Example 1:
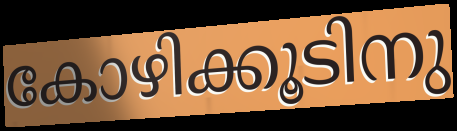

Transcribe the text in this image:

കോഴിക്കൂടിനു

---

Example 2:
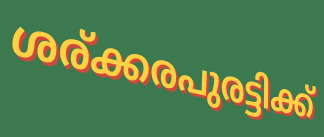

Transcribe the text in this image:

ശര്ക്കരപുരട്ടിക്ക്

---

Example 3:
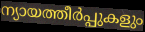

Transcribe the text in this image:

ന്യായത്തീർപ്പുകളും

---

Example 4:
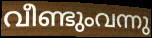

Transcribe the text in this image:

വീണ്ടുംവന്നു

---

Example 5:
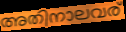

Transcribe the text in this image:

അതിനാലവര്